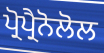
ਪ੍ਰੋਪ੍ਰੈਨੋਲੋਲ